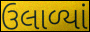
ઉલાળ્યાં